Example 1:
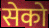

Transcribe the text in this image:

सेको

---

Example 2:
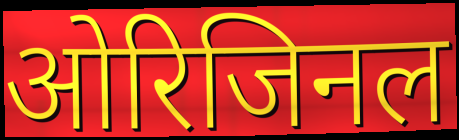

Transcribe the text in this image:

ओरिजिनल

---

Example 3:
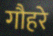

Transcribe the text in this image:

गौहरे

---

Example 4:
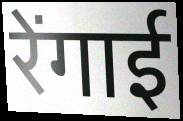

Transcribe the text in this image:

रेंगाई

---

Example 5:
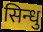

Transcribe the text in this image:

सिन्‍धु